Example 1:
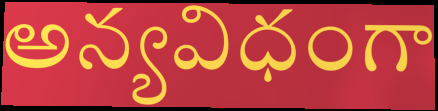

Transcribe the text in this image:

అన్యవిధంగా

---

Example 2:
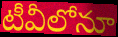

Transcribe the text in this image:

టీవీలోనూ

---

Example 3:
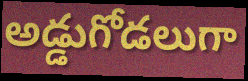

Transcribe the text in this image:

అడ్డుగోడలుగా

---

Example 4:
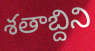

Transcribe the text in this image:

శతాబ్దిని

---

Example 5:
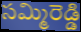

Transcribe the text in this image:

సమ్మిరెడ్డి